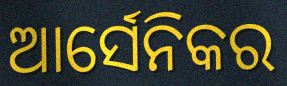
ଆର୍ସେନିକର